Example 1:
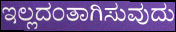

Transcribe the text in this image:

ಇಲ್ಲದಂತಾಗಿಸುವುದು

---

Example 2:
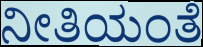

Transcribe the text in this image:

ನೀತಿಯಂತೆ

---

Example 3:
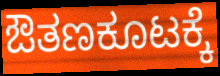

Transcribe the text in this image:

ಔತಣಕೂಟಕ್ಕೆ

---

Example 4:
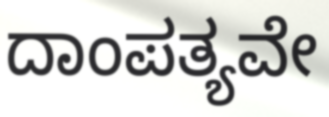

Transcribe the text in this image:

ದಾಂಪತ್ಯವೇ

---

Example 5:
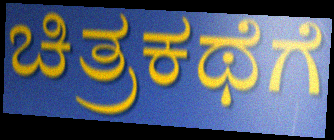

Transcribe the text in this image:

ಚಿತ್ರಕಥೆಗೆ